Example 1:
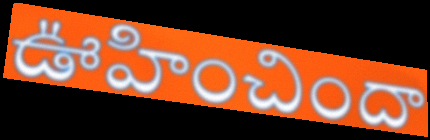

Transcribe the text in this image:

ఊహించిందా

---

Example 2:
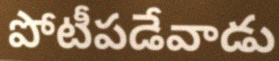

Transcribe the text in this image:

పోటీపడేవాడు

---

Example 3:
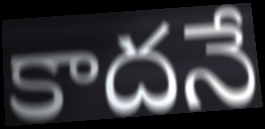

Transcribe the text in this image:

కాదనే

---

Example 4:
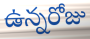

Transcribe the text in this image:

ఉన్నరోజు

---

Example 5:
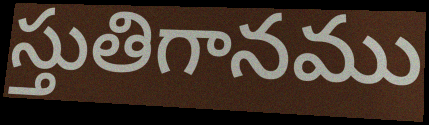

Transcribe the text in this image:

స్తుతిగానము